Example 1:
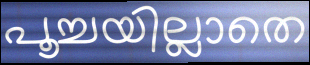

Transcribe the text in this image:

പൂച്ചയില്ലാതെ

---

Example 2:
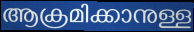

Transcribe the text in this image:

ആക്രമിക്കാനുള്ള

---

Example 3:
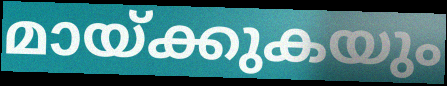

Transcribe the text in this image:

മായ്ക്കുകയും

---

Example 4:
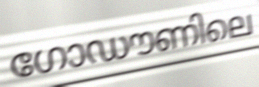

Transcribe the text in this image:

ഗോഡൗണിലെ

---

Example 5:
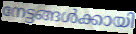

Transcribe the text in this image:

നേട്ടങ്ങൾക്കായി